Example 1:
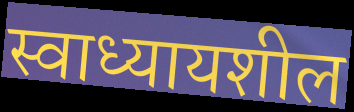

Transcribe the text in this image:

स्वाध्यायशील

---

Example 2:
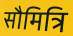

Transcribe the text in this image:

सौमित्रि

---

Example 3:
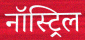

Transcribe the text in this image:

नॉस्ट्रिल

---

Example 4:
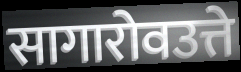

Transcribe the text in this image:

सागारोवउत्ते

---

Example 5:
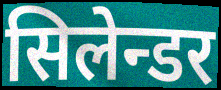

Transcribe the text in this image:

सिलेन्डर